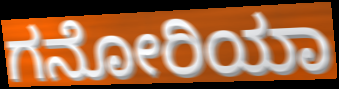
ಗನೋರಿಯಾ